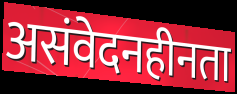
असंवेदनहीनता